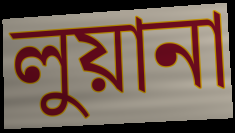
লুয়ানা